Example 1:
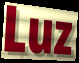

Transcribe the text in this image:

Luz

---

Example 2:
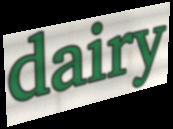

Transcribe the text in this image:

dairy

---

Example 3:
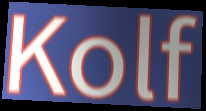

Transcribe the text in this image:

Kolf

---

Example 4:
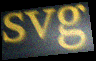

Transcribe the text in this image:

svg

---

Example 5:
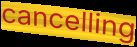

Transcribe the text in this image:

cancelling